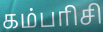
கம்பரிசி